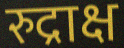
रुद्राक्ष